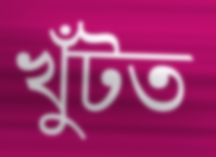
খুঁটত